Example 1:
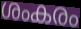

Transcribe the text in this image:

ശംകരം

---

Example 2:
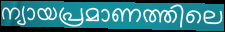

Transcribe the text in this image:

ന്യായപ്രമാണത്തിലെ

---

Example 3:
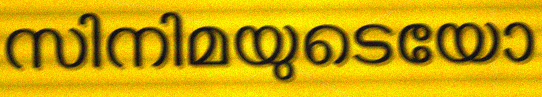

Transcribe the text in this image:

സിനിമയുടെയോ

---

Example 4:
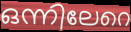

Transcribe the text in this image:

ഒന്നിലേറെ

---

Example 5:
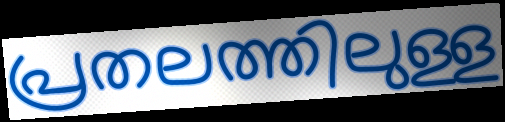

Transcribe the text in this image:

പ്രതലത്തിലുള്ള